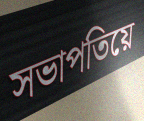
সভাপতিয়ে